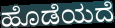
ಹೊಡೆಯದೆ